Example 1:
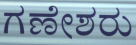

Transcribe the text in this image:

ಗಣೇಶರು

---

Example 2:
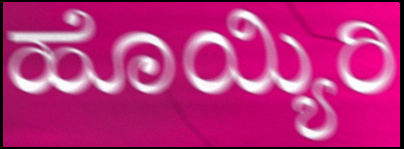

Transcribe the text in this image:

ಹೊಯ್ಯಿರಿ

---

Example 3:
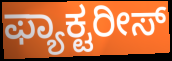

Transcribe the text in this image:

ಫ್ಯಾಕ್ಟರೀಸ್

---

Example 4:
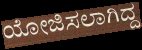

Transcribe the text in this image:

ಯೋಜಿಸಲಾಗಿದ್ದ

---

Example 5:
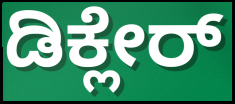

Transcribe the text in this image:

ಡಿಕ್ಲೇರ್